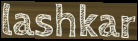
lashkar